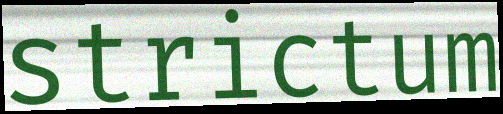
strictum